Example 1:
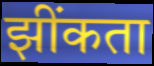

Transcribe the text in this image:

झींकता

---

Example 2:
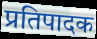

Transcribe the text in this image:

प्रतिपादक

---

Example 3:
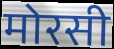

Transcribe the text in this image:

मोरसी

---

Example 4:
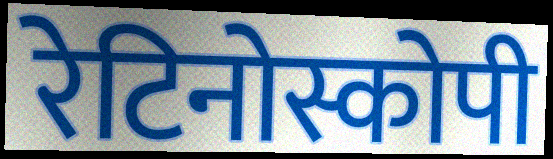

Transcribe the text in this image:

रेटिनोस्कोपी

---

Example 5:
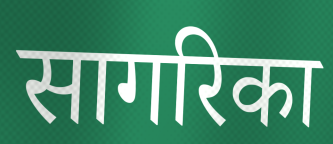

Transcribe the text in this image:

सागरिका